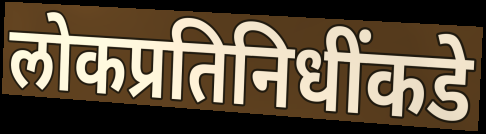
लोकप्रतिनिधींकडे